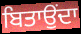
ਬਿਤਾਉਂਦਾ